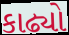
કાઢ્યો